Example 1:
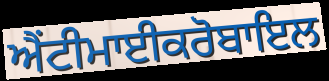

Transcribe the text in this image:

ਐਂਟੀਮਾਈਕਰੋਬਾਇਲ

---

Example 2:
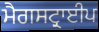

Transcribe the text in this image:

ਮੈਗਸਟ੍ਰਾਈਪ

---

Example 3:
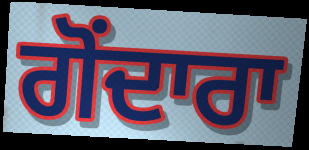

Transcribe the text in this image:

ਗੋਂਦਾਰਾ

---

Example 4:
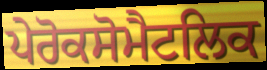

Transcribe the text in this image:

ਪੇਰੋਕਸੋਮੈਟਲਿਕ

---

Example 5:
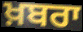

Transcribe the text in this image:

ਖ਼ਬਰਾ